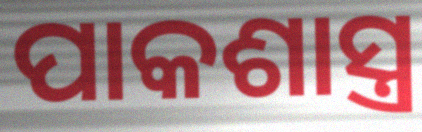
ପାକଶାସ୍ତ୍ର